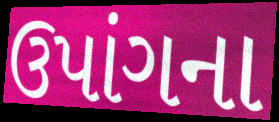
ઉપાંગના